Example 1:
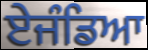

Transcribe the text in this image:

ਏਜੰਡਿਆ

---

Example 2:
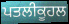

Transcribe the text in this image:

ਪਤਲੀਕੂਹਲ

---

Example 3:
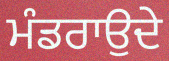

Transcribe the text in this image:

ਮੰਡਰਾਉਦੇ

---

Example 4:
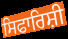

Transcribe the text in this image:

ਸਿਫਾਰਿਸ਼ੀ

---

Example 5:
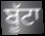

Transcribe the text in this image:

ਬੂੱਟਾ